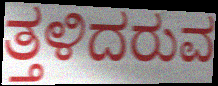
ತ್ತಳಿದರುವ